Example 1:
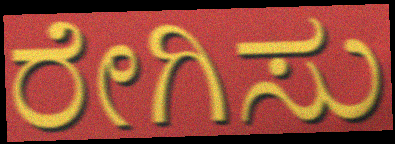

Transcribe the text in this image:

ರೇಗಿಸು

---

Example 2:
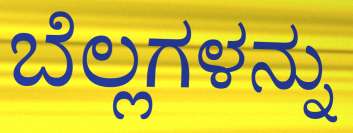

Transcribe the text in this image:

ಬೆಲ್ಲಗಳನ್ನು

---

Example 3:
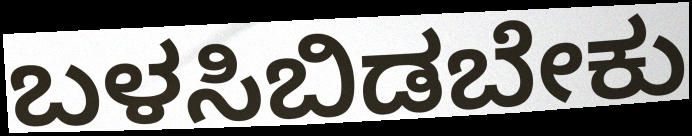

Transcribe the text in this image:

ಬಳಸಿಬಿಡಬೇಕು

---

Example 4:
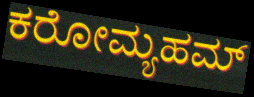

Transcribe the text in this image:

ಕರೋಮ್ಯಹಮ್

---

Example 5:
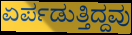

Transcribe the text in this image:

ಏರ್ಪಡುತ್ತಿದ್ದವು